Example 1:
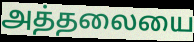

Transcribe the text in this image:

அத்தலையை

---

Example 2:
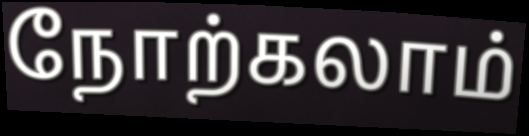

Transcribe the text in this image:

நோற்கலாம்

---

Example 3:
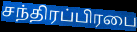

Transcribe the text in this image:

சந்திரப்பிரபை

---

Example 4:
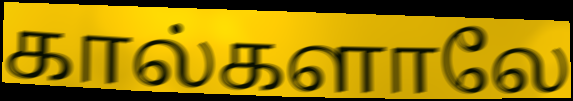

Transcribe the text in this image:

கால்களாலே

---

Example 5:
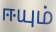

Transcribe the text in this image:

ஈயும்